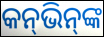
କନ୍‌ଭିନ୍‌ଙ୍କ